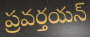
ప్రవర్తయన్